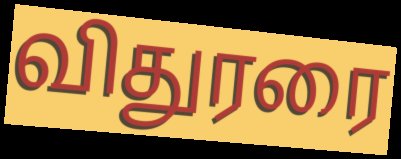
விதுரரை